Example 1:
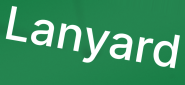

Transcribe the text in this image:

Lanyard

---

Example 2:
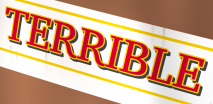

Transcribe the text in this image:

TERRIBLE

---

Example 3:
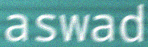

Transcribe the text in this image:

aswad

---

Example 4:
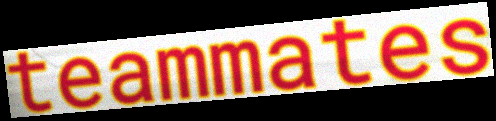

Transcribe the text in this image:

teammates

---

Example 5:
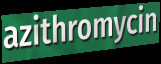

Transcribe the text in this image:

azithromycin